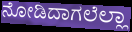
ನೋಡಿದಾಗಲೆಲ್ಲಾ